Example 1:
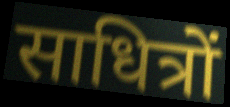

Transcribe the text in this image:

साधित्रों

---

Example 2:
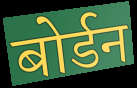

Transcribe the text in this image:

बोर्डन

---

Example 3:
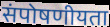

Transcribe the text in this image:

संपोषणीयता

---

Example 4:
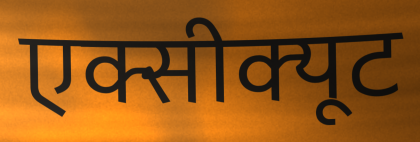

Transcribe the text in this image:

एक्सीक्यूट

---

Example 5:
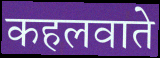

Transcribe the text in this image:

कहलवाते